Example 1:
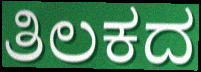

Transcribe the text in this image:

ತಿಲಕದ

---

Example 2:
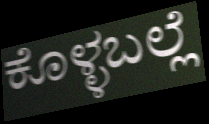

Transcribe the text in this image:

ಕೊಳ್ಳಬಲ್ಲೆ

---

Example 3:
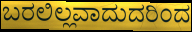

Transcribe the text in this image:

ಬರಲಿಲ್ಲವಾದುದರಿಂದ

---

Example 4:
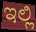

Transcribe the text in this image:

ಇಲ್ಲಿ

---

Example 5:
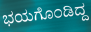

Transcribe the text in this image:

ಭಯಗೊಂಡಿದ್ದ